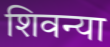
शिवन्या